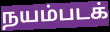
நயம்படக்